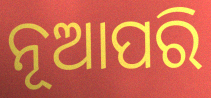
ନୂଆପରି